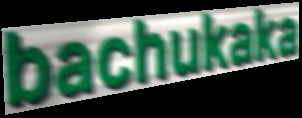
bachukaka